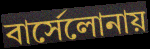
বার্সেলোনায়